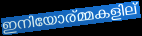
ഇനിയോര്മ്മകളില്